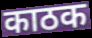
काठक